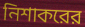
নিশাকরের